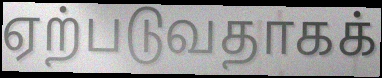
ஏற்படுவதாகக்